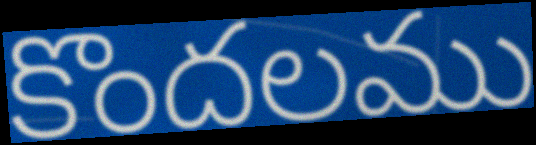
కొందలము